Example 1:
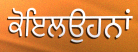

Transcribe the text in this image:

ਕੋਇਲਉਹਨਾਂ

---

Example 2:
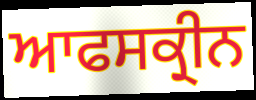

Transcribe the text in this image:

ਆਫਸਕ੍ਰੀਨ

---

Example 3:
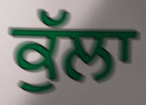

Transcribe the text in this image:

ਕੁੱਲਾ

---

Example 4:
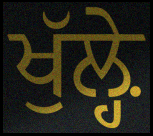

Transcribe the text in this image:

ਖੁੱਲ਼੍ਹੇ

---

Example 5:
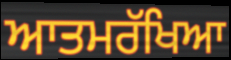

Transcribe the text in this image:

ਆਤਮਰੱਖਿਆ